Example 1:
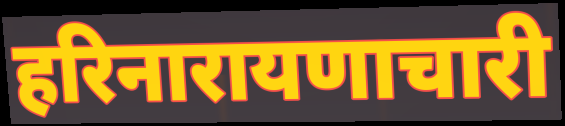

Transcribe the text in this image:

हरिनारायणाचारी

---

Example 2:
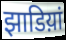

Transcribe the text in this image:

झाडिय़ां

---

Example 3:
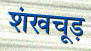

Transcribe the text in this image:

शंखचूड़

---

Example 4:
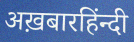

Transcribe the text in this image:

अख़बारहिंन्दी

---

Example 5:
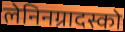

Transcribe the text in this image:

लेनिनग्रादस्को